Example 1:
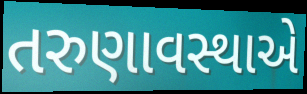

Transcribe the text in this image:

તરુણાવસ્થાએ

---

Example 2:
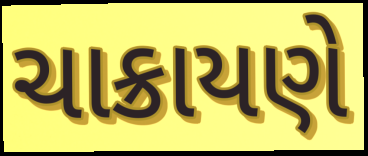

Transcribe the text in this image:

ચાક્રાયણે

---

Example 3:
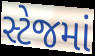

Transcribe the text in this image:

સ્ટેજમાં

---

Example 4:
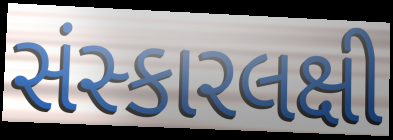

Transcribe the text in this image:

સંસ્કારલક્ષી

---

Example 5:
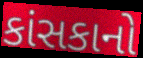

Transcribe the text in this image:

કાંસકાનો